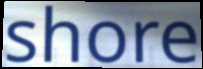
shore